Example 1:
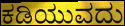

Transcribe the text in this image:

ಕಡಿಯುವದು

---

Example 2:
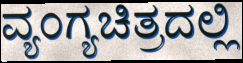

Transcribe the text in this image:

ವ್ಯಂಗ್ಯಚಿತ್ರದಲ್ಲಿ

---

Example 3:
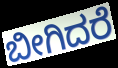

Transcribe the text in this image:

ಬೀಗಿದರೆ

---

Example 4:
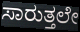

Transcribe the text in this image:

ಸಾರುತ್ತಲೇ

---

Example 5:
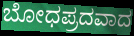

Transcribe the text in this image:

ಬೋಧಪ್ರದವಾದ